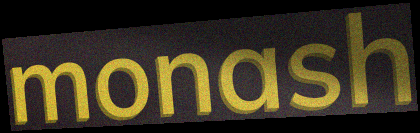
monash